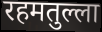
रहमतुल्ला